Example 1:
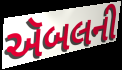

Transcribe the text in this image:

ઍબલની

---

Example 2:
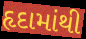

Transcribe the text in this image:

હૃદામાંથી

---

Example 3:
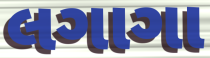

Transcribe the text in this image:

લગાગા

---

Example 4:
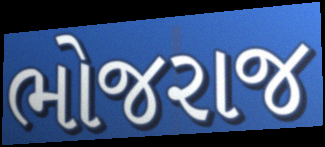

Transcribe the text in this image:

ભોજરાજ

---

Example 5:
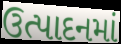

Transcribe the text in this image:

ઉત્પાદનમાં